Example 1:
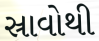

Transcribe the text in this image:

સ્રાવોથી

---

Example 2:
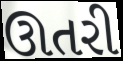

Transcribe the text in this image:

ઊતરી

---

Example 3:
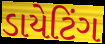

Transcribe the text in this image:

ડાયેટિંગ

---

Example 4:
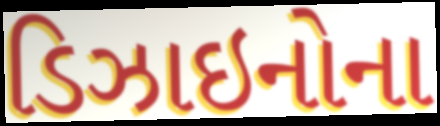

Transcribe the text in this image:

ડિઝાઇનોના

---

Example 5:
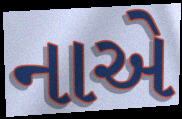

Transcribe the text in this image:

નાએ